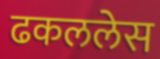
ढकललेस